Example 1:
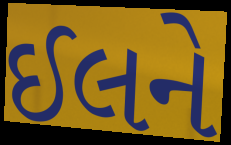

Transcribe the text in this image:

ઈલને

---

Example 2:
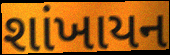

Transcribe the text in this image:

શાંખાયન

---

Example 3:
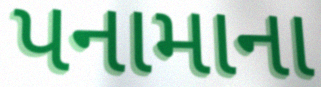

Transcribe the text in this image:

પનામાના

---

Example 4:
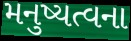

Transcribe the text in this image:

મનુષ્યત્વના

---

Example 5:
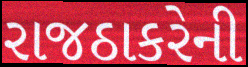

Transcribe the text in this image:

રાજઠાકરેની